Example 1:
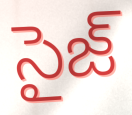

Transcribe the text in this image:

సైజ్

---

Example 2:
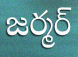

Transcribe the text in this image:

జర్మర్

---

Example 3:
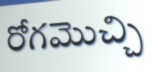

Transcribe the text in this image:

రోగమొచ్చి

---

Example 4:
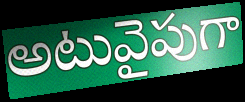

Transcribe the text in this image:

అటువైపుగా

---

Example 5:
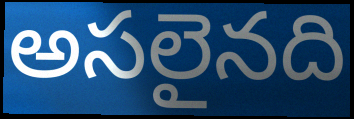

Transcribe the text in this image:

అసలైనది